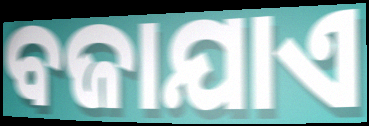
ବଜାଯାଏ